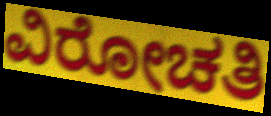
ವಿರೋಚತಿ